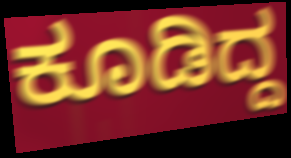
ಕೂಡಿದ್ದ